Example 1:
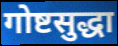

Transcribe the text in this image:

गोष्टसुद्धा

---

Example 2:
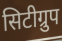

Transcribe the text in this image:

सिटीग्रुप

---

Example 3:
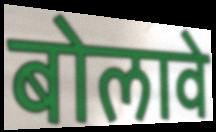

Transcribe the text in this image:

बोलावे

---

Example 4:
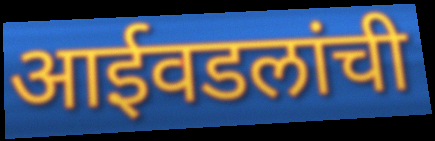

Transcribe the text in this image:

आईवडलांची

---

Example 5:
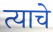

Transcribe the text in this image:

त्याचे